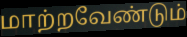
மாற்றவேண்டும்